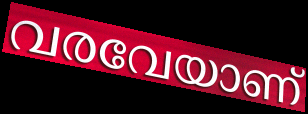
വരവേയാണ്